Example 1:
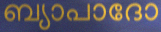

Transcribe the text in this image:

ബ്യാപാദോ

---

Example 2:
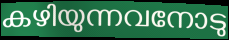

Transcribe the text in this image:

കഴിയുന്നവനോടു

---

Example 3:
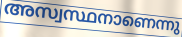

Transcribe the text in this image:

അസ്വസ്ഥനാണെന്നു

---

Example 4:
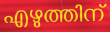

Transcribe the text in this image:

എഴുത്തിന്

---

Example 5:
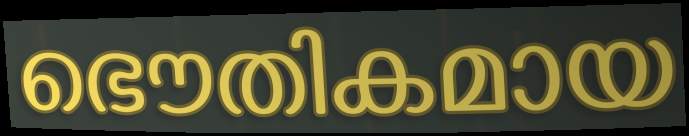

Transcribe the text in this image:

ഭൌതികമായ